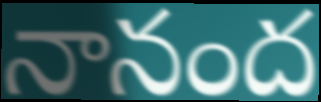
నానంద